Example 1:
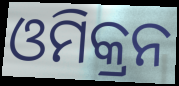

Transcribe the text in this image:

ଓମିକ୍ରନ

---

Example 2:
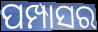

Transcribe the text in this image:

ପମ୍ପାସର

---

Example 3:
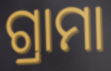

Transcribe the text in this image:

ଗ୍ରାମା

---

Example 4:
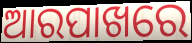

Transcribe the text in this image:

ଆରପାଖରେ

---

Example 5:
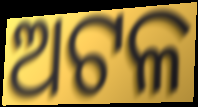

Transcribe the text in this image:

ଅଟଳ